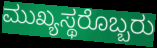
ಮುಖ್ಯಸ್ಥರೊಬ್ಬರು